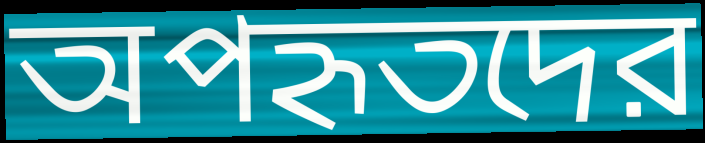
অপহৃতদের